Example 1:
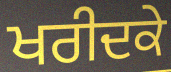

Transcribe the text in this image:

ਖਰੀਦਕੇ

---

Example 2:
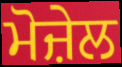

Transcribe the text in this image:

ਮੋਜ਼ੇਲ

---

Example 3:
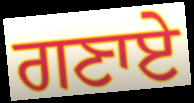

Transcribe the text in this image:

ਗਣਾਏ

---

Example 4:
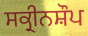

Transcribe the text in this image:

ਸਕ੍ਰੀਨਸ਼ੌਪ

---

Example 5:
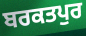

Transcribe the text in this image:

ਬਰਕਤਪੁਰ